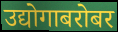
उद्योगाबरोबर